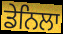
ਡੇਨਿਲਾ